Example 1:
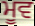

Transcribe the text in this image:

ਮੂਵ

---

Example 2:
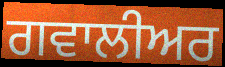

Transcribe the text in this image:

ਗਵਾਲੀਅਰ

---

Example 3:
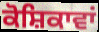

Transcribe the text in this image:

ਕੋਸ਼ਿਕਾਵਾਂ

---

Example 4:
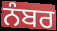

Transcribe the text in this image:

ਨੰਬਰ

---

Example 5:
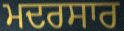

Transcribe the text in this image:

ਮਦਰਸਾਰ